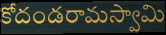
కోదండరామస్వామి